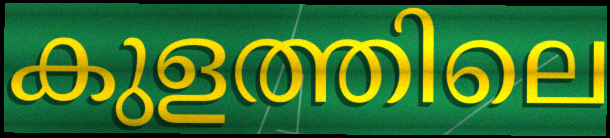
കുളത്തിലെ